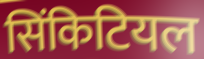
सिंकिटियल